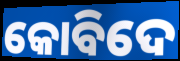
କୋବିଦେ